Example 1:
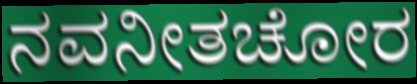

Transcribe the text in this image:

ನವನೀತಚೋರ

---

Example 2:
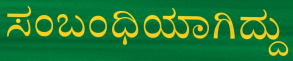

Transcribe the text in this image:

ಸಂಬಂಧಿಯಾಗಿದ್ದು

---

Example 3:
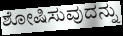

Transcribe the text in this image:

ಶೋಷಿಸುವುದನ್ನು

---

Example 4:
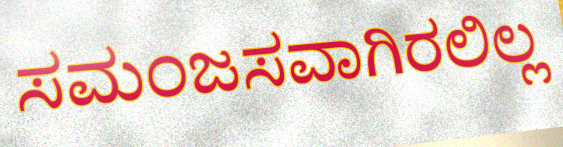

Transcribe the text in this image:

ಸಮಂಜಸವಾಗಿರಲಿಲ್ಲ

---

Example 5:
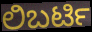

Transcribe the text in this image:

ಲಿಬರ್ಟಿ